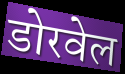
डोरवेल